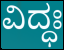
ವಿದ್ಧಃ